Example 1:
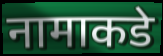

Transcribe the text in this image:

नामाकडे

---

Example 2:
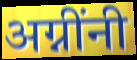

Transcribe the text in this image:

अग्नींनी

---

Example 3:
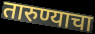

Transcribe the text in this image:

तारुण्याचा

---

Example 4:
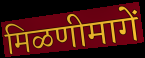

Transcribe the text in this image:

मिळणीमागें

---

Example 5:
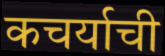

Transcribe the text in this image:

कचर्याची